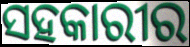
ସହକାରୀର